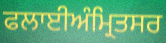
ਫਲਾਈਅੰਮ੍ਰਿਤਸਰ